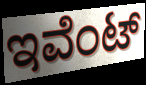
ಇವೆಂಟ್